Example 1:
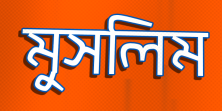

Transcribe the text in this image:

মুসলিম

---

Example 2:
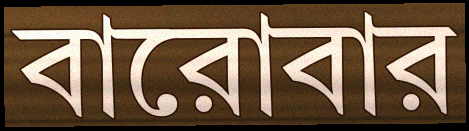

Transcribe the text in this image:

বারোবার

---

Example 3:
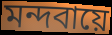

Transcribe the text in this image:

মন্দবায়ে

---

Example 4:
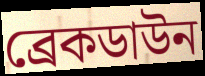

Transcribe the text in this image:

ব্রেকডাউন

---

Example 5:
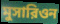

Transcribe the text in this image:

মুসারিওন